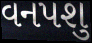
વનપશુ